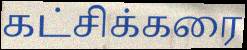
கட்சிக்கரை